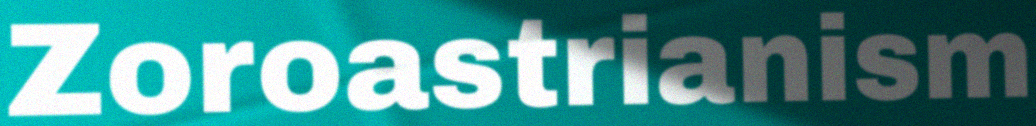
Zoroastrianism